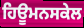
ਹਿਊਮਨਸਕੇਲ